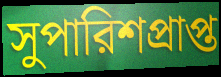
সুপারিশপ্রাপ্ত